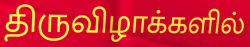
திருவிழாக்களில்